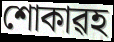
শোকাৱহ